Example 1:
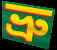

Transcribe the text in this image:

ভ্রু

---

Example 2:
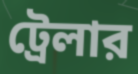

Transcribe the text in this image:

ট্রেলার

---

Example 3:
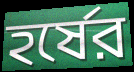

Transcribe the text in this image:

হর্ষের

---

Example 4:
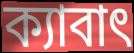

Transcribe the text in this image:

ক্যাবাৎ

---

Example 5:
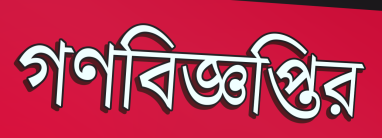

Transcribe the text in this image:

গণবিজ্ঞপ্তির